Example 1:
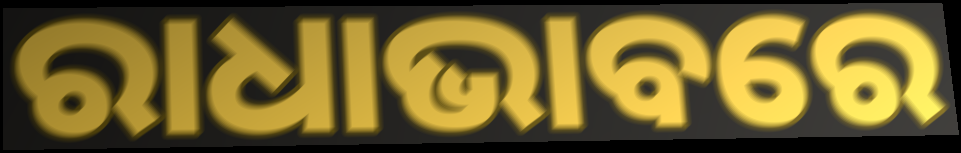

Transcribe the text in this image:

ରାଧାଭାବରେ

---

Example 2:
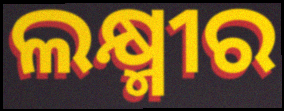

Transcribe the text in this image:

ଲକ୍ଷ୍ମୀର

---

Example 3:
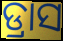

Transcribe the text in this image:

ଡ୍ରାସ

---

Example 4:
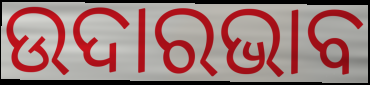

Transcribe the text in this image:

ଉଦାରଭାବ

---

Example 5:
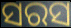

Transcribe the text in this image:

ସରସ